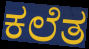
ಕಲೆತ